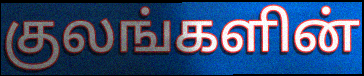
குலங்களின்